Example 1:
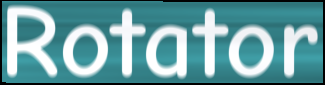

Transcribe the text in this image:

Rotator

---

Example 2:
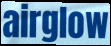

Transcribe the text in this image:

airglow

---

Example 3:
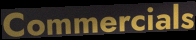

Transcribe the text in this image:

Commercials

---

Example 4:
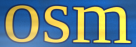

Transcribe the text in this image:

osm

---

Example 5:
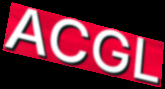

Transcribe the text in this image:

ACGL